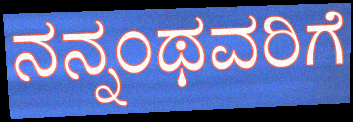
ನನ್ನಂಥವರಿಗೆ